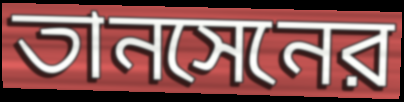
তানসেনের